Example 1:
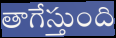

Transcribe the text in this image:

తాగేస్తుంది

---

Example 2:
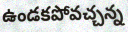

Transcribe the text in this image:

ఉండకపోవచ్చన్న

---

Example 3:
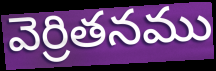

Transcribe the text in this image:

వెర్రితనము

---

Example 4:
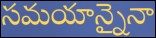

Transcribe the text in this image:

సమయాన్నైనా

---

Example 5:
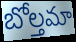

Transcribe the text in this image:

బోల్తమా